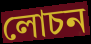
লোচন